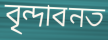
বৃন্দাবনত